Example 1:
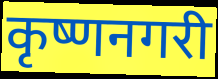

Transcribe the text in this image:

कृष्णनगरी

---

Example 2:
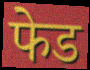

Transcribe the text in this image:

फेड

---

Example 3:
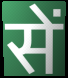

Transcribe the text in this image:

सें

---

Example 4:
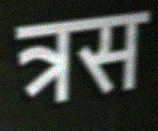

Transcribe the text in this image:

त्रस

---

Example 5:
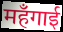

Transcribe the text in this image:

महँगाई